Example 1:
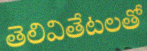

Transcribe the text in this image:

తెలివితేటలతో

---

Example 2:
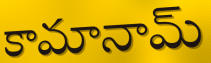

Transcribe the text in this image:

కామానామ్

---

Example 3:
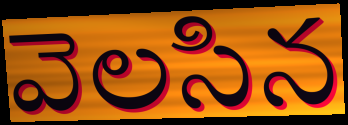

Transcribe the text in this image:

వెలసిన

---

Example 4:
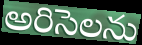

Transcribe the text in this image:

అరిసెలను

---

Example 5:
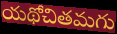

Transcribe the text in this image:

యథోచితమగు